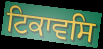
ਟਿਕਾਵਸਿ